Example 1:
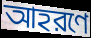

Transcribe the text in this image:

আহরণে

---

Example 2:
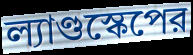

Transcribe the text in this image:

ল্যাণ্ডস্কেপের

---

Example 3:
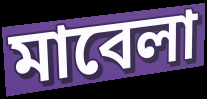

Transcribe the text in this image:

মাবেলা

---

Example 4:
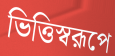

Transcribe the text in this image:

ভিত্তিস্বরূপে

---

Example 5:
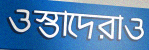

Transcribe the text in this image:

ওস্তাদেরাও